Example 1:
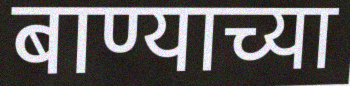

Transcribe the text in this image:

बाण्याच्या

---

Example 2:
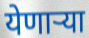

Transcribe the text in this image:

येणार्‍या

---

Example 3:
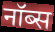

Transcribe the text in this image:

नॉब्स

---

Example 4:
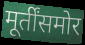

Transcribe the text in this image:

मूर्तींसमोर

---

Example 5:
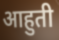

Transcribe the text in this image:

आहुती